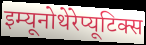
इम्यूनोथेरेप्यूटिक्स